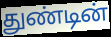
துண்டின்